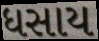
ધસાય